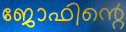
ജോഫിന്റെ